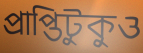
প্রাপ্তিটুকুও